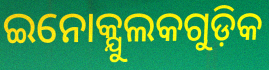
ଇନୋକ୍ଯୁଲକଗୁଡ଼ିକ